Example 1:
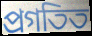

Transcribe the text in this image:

প্ৰগতিত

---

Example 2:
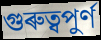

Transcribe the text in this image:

গুৰুত্বপুৰ্ণ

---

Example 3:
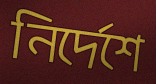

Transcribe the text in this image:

নিৰ্দেশে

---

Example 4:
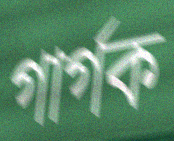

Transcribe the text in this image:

গাৰ্গক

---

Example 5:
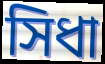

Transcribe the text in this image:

সিধা